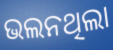
ଭଲନଥିଲା